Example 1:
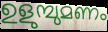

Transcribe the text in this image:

ഉളുമ്പുമണം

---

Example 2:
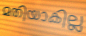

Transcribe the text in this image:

മതിയാകില്ല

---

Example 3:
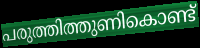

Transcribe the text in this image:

പരുത്തിത്തുണികൊണ്ട്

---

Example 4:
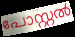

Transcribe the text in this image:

പോസ്റ്റൽ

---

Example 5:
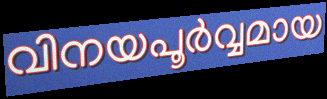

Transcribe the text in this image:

വിനയപൂർവ്വമായ